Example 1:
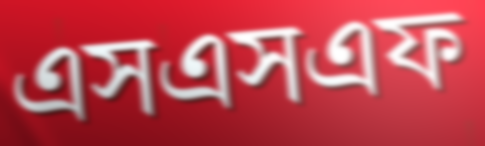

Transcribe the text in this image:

এসএসএফ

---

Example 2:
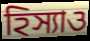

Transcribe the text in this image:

হিস্যাও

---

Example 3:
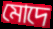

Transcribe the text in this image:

মোদে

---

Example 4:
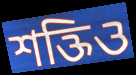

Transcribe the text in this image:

শক্তিও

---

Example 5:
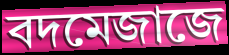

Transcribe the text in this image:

বদমেজাজে